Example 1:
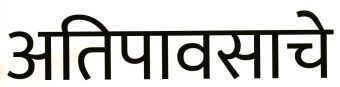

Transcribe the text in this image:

अतिपावसाचे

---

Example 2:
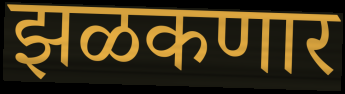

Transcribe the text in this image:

झळकणार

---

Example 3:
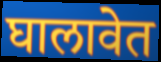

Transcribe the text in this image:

घालावेत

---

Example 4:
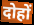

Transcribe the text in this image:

दोहों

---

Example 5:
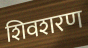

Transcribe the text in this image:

शिवशरण